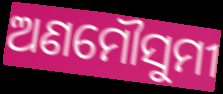
ଅଣମୌସୁମୀ